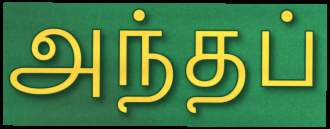
அந்தப்